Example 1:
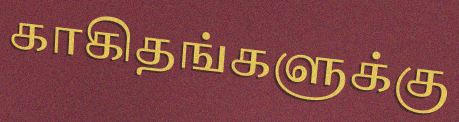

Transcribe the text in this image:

காகிதங்களுக்கு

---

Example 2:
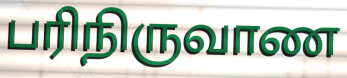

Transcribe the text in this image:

பரிநிருவாண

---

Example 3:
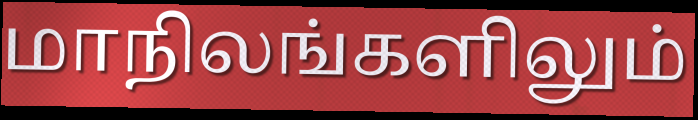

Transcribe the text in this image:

மாநிலங்களிலும்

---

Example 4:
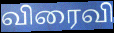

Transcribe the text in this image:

விரைவி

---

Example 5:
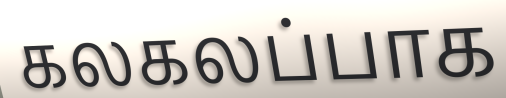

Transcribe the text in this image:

கலகலப்பாக